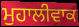
ਮੁਹਾਲੀਵਾਕ